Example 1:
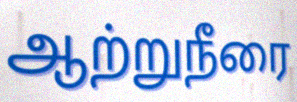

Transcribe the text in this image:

ஆற்றுநீரை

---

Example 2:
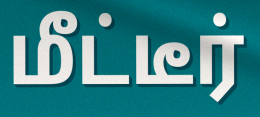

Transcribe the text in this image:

மீட்டீர்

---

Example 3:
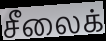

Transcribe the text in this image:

சீலைக்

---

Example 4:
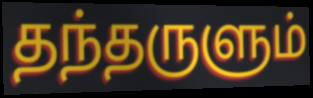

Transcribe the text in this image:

தந்தருளும்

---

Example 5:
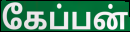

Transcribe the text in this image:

கேப்பன்